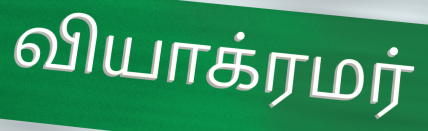
வியாக்ரமர்